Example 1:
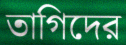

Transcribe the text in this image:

তাগিদের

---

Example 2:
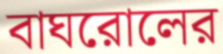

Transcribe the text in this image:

বাঘরোলের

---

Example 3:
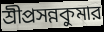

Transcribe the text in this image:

শ্রীপ্রসন্নকুমার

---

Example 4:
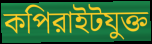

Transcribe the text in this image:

কপিরাইটযুক্ত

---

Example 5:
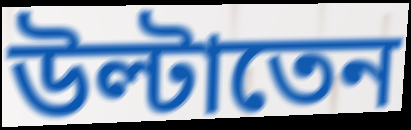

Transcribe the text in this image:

উল্টাতেন